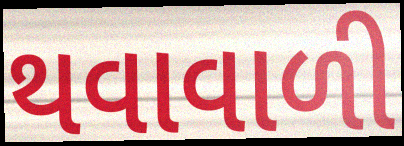
થવાવાળી